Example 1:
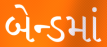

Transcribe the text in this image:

બેન્ડમાં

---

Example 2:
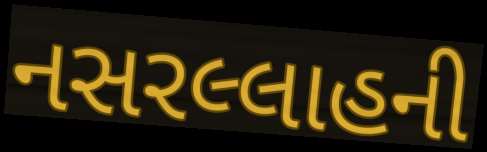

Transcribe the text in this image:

નસરલ્લાહની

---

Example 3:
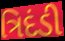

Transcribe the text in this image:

ત્રિદંડી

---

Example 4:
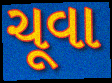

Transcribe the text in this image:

ચૂવા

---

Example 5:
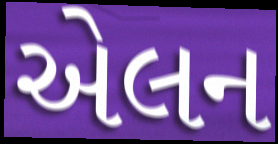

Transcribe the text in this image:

એલન